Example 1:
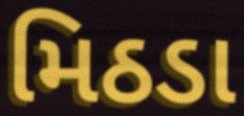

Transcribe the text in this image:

મિઠડા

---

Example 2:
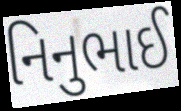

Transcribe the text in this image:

નિનુભાઈ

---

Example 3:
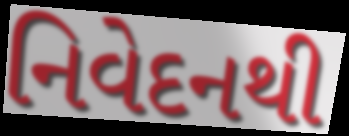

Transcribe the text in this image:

નિવેદનથી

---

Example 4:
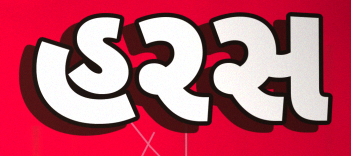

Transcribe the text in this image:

હરસ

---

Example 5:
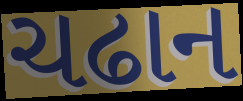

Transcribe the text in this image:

ચઢાન